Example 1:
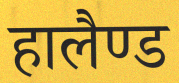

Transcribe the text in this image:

हालैण्ड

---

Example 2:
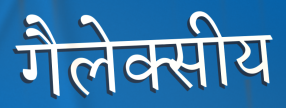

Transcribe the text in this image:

गैलेक्सीय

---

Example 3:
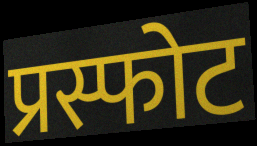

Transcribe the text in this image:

प्रस्फोट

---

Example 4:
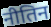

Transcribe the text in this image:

नीतिन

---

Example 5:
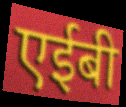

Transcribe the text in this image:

एईबी